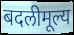
बदलीमूल्य